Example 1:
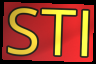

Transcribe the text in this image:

STI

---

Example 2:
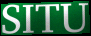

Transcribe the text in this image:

SITU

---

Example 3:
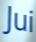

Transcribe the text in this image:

Jui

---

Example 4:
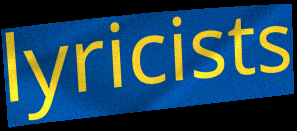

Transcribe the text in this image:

lyricists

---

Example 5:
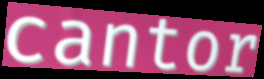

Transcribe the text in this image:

cantor